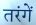
तरंगें